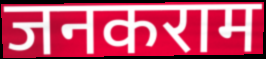
जनकराम